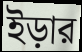
ইড়ার